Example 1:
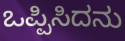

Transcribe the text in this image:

ಒಪ್ಪಿಸಿದನು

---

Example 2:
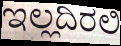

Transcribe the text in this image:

ಇಲ್ಲದಿರಲಿ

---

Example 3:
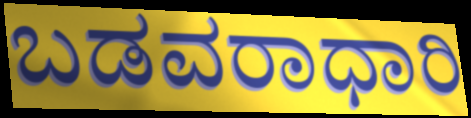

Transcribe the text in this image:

ಬಡವರಾಧಾರಿ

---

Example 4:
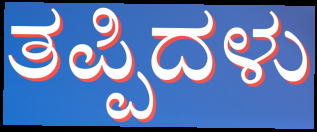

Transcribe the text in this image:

ತಪ್ಪಿದಳು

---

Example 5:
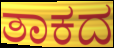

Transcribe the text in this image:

ತಾಕದ